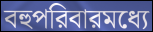
বহুপরিবারমধ্যে